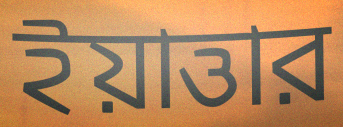
ইয়াত্তার